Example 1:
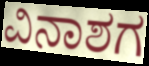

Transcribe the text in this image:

ವಿನಾಶಗ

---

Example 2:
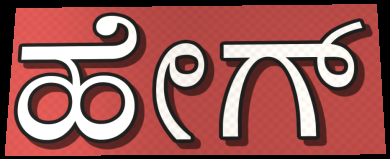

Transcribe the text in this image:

ಹೇಗ್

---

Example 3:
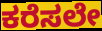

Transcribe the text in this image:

ಕರೆಸಲೇ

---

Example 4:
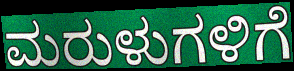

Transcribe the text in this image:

ಮರುಳುಗಳಿಗೆ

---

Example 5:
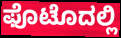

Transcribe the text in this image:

ಫೊಟೊದಲ್ಲಿ